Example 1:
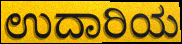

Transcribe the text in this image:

ಉದಾರಿಯ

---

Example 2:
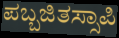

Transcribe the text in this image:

ಪಬ್ಬಜಿತಸ್ಸಾಪಿ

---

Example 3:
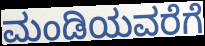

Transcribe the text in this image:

ಮಂಡಿಯವರೆಗೆ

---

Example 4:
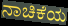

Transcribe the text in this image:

ನಾಚಿಕೆಯ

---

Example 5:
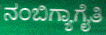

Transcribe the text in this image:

ನಂಬಿಗ್ಯಾಗೈತಿ